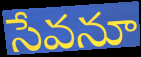
సేవనూ